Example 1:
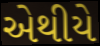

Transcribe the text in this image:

એથીયે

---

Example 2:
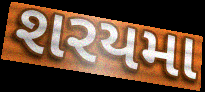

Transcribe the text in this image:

શરયમા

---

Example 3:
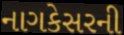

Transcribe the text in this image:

નાગકેસરની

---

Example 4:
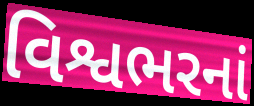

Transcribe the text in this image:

વિશ્વભરનાં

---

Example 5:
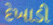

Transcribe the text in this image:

દેખાડી